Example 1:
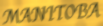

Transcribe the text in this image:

MANITOBA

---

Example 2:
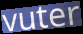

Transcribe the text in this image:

vuter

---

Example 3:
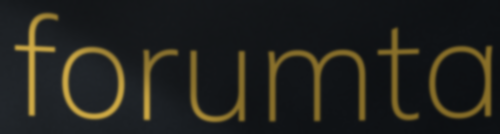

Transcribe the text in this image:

forumta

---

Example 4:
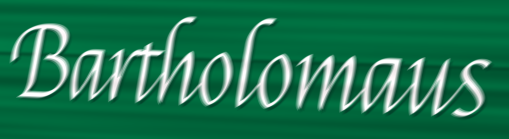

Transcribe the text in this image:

Bartholomaus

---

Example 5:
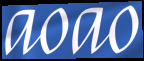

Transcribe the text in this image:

aoao